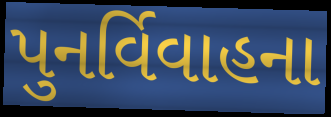
પુનર્વિવાહના